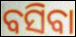
ବସିବା